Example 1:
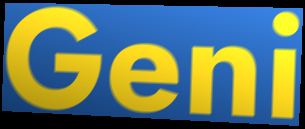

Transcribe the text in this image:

Geni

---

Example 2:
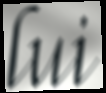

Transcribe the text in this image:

lui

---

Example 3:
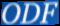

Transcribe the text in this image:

ODF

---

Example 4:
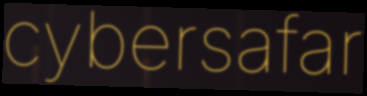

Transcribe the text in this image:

cybersafar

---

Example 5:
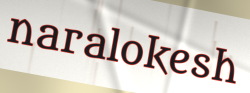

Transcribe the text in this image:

naralokesh